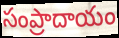
సంప్రాదాయం